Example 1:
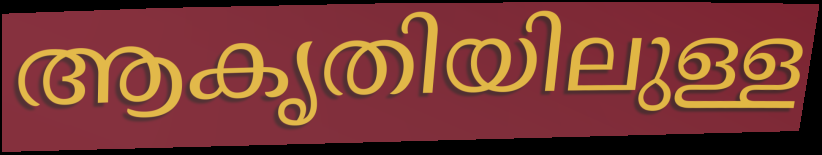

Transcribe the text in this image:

ആകൃതിയിലുള്ള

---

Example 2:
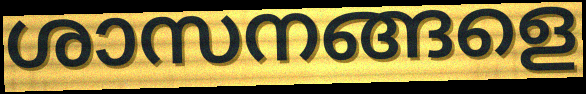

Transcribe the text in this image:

ശാസനങ്ങളെ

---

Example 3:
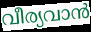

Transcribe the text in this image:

വീര്യവാൻ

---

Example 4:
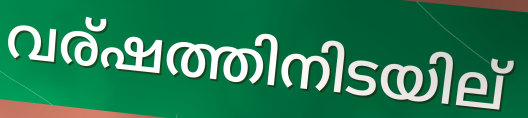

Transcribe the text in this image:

വര്ഷത്തിനിടയില്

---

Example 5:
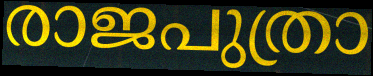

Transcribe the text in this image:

രാജപുത്രാ